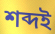
শব্দই